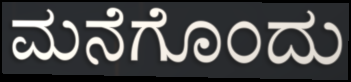
ಮನೆಗೊಂದು